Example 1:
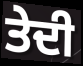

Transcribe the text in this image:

ਤੇਦੀ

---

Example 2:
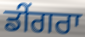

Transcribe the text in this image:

ਡੀਂਗਰਾ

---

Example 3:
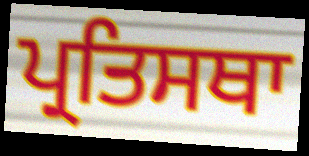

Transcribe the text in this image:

ਪ੍ਰਤਿਸਥਾ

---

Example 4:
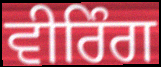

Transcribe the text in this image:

ਵੀਰਿੰਗ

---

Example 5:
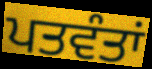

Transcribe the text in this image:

ਪਤਵੰਤਾਂ